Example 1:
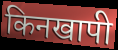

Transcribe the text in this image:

किनखापी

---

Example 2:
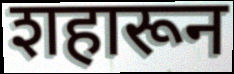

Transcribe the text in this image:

शहारून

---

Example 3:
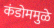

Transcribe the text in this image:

कंडोममुळे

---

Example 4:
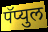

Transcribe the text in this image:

पॅप्युल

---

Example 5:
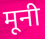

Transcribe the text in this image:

मूनी